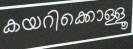
കയറിക്കൊള്ളൂ